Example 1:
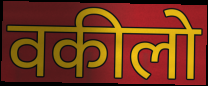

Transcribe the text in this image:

वकीलो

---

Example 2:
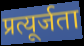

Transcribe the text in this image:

प्रत्यूर्जता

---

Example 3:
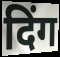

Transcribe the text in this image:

दिंग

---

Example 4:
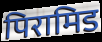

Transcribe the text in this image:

पिरामिड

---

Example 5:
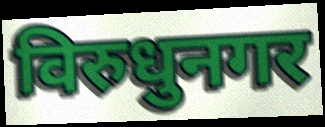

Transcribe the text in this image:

विरुधुनगर